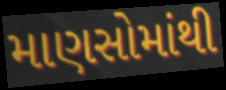
માણસોમાંથી